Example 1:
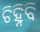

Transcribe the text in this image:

ଚିହ୍ନିବି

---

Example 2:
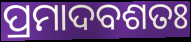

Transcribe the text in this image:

ପ୍ରମାଦବଶତଃ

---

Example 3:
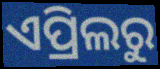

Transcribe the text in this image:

ଏପ୍ରିଲରୁ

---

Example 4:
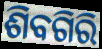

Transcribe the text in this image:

ଶିବଗିରି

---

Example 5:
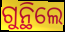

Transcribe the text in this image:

ଗୁନ୍ଥିଲେ